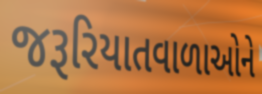
જરૂરિયાતવાળાઓને